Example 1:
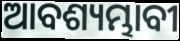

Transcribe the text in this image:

ଆବଶ୍ୟମ୍ଭାବୀ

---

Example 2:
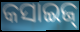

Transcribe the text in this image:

କସାଇଜ୍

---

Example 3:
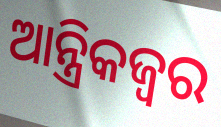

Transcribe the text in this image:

ଆନ୍ତ୍ରିକଜ୍ଵର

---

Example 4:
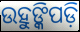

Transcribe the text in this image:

ଉହୁଙ୍କିପଡ଼ି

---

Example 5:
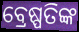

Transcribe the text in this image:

ବ୍ରେଷ୍ପତିଙ୍କ